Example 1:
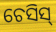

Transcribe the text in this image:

ଚେସିସ୍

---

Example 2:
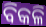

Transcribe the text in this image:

ବିକଳି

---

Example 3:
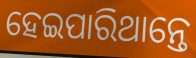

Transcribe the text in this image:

ହେଇପାରିଥାନ୍ତେ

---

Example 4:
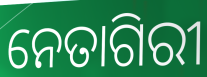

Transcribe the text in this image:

ନେତାଗିରୀ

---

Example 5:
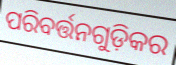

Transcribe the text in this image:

ପରିବର୍ତ୍ତନଗୁଡ଼ିକର